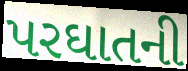
પરઘાતની